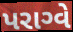
પરાગ્વે